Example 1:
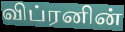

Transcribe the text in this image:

விப்ரனின்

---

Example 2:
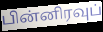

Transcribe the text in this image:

பின்னிரவுப்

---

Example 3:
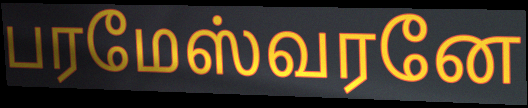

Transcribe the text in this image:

பரமேஸ்வரனே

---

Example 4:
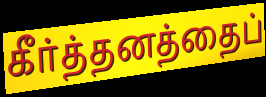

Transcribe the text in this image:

கீர்த்தனத்தைப்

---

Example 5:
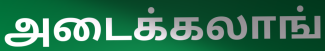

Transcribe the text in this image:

அடைக்கலாங்